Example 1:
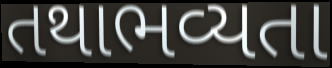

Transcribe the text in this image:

તથાભવ્યતા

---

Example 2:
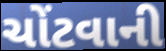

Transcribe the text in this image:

ચોંટવાની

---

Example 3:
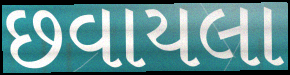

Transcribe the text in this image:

છવાયલા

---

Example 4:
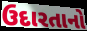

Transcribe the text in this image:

ઉદારતાનો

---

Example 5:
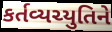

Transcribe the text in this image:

કર્તવ્યચ્યુતિને